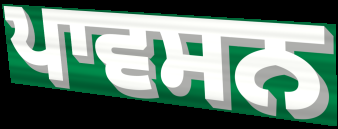
ਪਾਵਸਨ